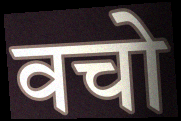
वचो